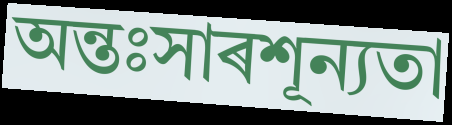
অন্তঃসাৰশূন্যতা